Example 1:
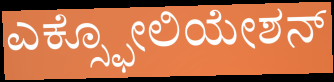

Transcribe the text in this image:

ಎಕ್ಸ್ಫೋಲಿಯೇಶನ್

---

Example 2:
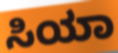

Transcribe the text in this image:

ಸಿಯಾ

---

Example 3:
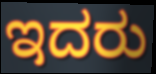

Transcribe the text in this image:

ಇದರು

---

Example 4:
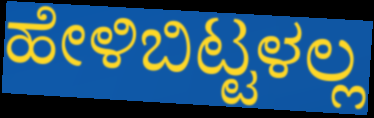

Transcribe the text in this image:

ಹೇಳಿಬಿಟ್ಟಳಲ್ಲ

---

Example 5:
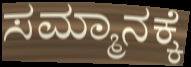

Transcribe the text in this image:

ಸಮ್ಮಾನಕ್ಕೆ